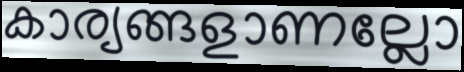
കാര്യങ്ങളാണല്ലോ